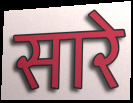
सारे